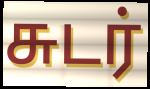
சுடர்